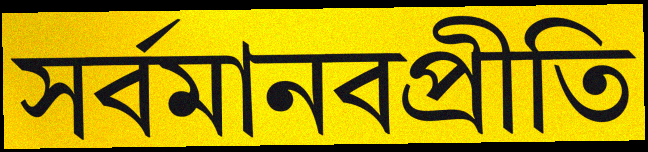
সর্বমানবপ্রীতি